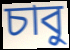
চাবু